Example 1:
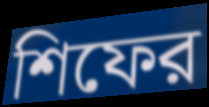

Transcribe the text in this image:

শিফের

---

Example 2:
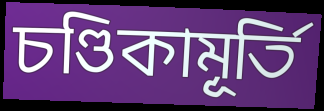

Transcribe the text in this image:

চণ্ডিকামূর্তি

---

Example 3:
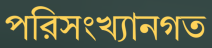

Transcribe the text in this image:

পরিসংখ্যানগত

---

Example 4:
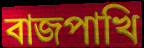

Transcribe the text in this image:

বাজপাখি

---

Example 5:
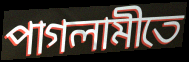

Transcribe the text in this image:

পাগলামীতে